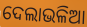
ଦେଲାଭଳିଆ